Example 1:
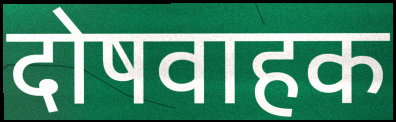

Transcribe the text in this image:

दोषवाहक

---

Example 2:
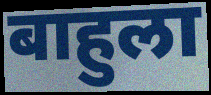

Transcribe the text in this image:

बाहुला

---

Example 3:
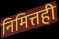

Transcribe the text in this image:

निमित्तही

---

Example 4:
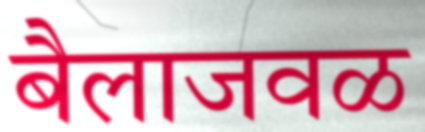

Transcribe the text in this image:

बैलाजवळ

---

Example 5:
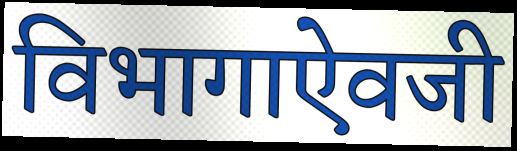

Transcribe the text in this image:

विभागाऐवजी